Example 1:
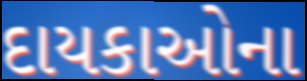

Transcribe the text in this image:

દાયકાઓના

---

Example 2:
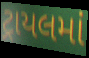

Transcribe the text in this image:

ટ્રાયલમાં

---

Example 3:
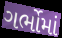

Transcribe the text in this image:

ગર્ભોમાં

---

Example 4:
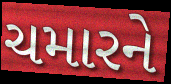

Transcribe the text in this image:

ચમારને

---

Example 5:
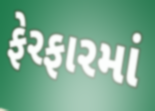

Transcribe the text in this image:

ફેરફારમાં